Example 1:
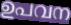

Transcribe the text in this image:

ഉപവന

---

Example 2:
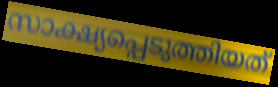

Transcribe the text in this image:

സാക്ഷ്യപ്പെടുത്തിയത്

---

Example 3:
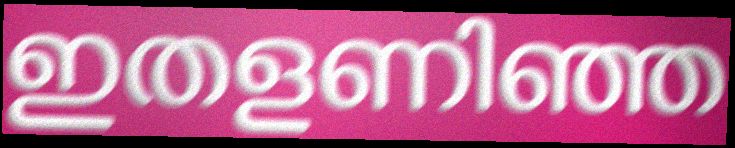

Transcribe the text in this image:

ഇതളണിഞ്ഞ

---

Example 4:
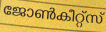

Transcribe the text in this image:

ജോൺകീറ്റ്സ്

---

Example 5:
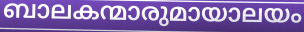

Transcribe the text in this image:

ബാലകന്മാരുമായാലയം